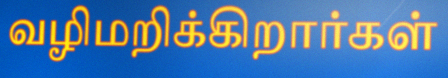
வழிமறிக்கிறார்கள்